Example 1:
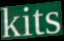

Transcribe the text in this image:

kits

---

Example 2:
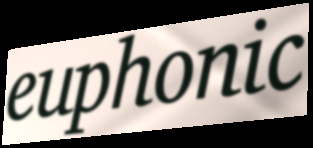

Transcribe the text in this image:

euphonic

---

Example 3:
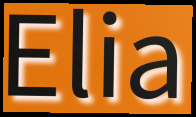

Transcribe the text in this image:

Elia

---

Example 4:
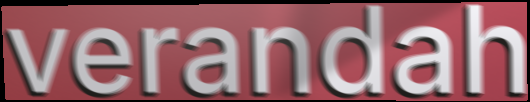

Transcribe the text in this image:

verandah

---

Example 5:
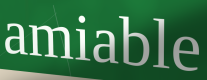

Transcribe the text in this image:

amiable